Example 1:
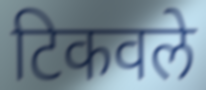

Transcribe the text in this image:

टिकवले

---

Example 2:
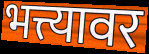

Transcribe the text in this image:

भत्त्यावर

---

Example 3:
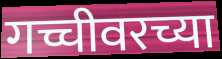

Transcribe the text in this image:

गच्चीवरच्या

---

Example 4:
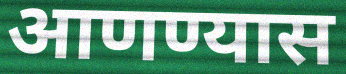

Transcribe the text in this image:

आणण्यास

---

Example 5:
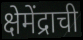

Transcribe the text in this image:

क्षेमेंद्राची